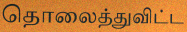
தொலைத்துவிட்ட